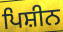
ਪਿਸ਼ੀਨ